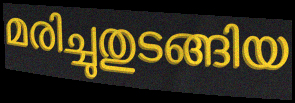
മരിച്ചുതുടങ്ങിയ